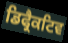
ਡਿਫ੍ਰੈਕਟਿਵ